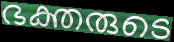
ഭക്തരുടെ